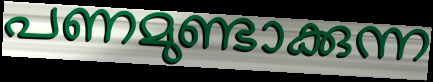
പണമുണ്ടാക്കുന്ന